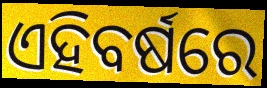
ଏହିବର୍ଷରେ